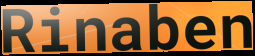
Rinaben